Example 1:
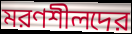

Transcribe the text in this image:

মরণশীলদের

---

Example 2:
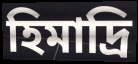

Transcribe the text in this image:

হিমাদ্রি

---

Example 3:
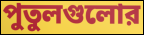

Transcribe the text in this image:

পুতুলগুলোর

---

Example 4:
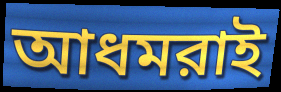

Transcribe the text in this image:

আধমরাই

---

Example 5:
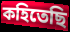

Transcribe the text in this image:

কহিতেছি